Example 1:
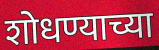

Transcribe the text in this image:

शोधण्याच्या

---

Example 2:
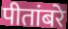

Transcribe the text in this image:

पीतांबरे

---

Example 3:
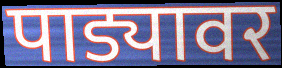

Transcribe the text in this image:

पाड्यावर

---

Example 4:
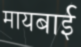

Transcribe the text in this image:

मायबाई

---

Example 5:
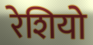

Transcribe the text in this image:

रेशियो